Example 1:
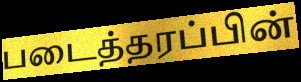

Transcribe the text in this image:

படைத்தரப்பின்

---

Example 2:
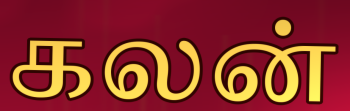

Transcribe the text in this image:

கலன்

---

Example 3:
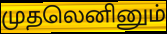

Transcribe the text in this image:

முதலெனினும்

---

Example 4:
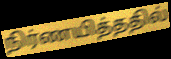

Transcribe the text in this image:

நிர்ணயித்ததில்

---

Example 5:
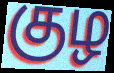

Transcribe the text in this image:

குழ